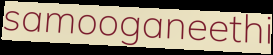
samooganeethi